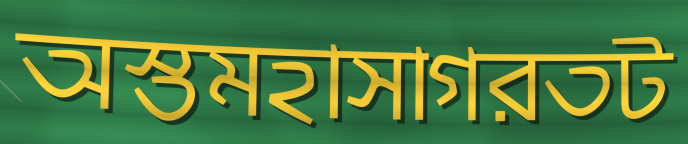
অস্তমহাসাগরতট